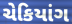
ચેકિયાંગ